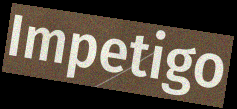
Impetigo